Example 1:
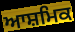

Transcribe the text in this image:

ਆਸ਼ਮਿਕ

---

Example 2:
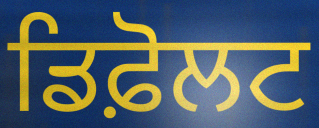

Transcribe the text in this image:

ਡਿਫ਼ੋਲਟ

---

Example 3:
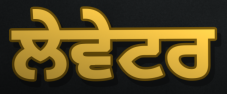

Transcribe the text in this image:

ਲੇਵੇਟਰ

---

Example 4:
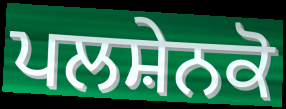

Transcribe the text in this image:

ਪਲਸ਼ੇਨਕੋ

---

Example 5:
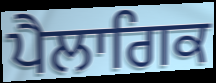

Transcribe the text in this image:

ਪੈਲਾਗਿਕ